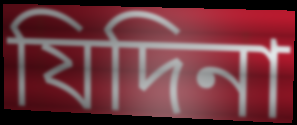
যিদিনা